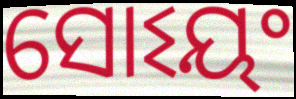
ସୋଽୟଂ